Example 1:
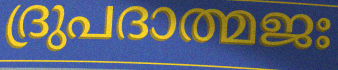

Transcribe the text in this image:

ദ്രുപദാത്മജഃ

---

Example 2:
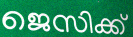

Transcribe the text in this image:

ജെസിക്ക്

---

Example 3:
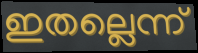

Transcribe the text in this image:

ഇതല്ലെന്ന്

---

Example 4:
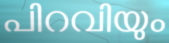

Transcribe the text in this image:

പിറവിയും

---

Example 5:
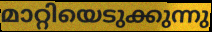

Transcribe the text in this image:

മാറ്റിയെടുക്കുന്നു